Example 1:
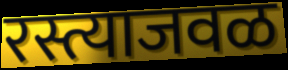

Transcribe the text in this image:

रस्त्याजवळ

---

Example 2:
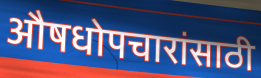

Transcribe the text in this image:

औषधोपचारांसाठी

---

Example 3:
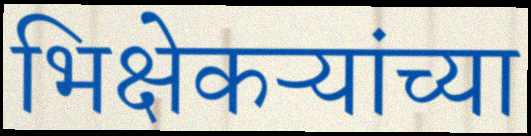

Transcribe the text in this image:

भिक्षेकऱ्यांच्या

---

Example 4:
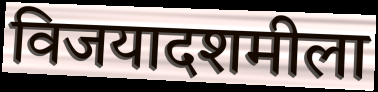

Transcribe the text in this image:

विजयादशमीला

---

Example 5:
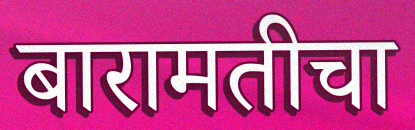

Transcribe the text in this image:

बारामतीचा